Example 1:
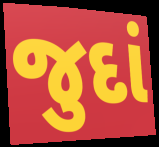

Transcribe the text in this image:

જુદાં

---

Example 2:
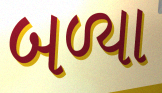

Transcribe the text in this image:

બળ્યા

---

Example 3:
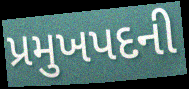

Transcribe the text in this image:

પ્રમુખપદની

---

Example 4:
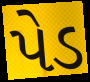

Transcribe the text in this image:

પેડ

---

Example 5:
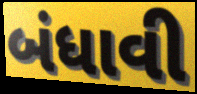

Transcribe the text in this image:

બંધાવી